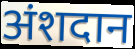
अंशदान